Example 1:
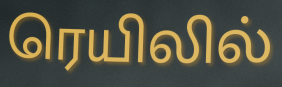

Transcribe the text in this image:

ரெயிலில்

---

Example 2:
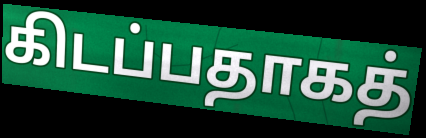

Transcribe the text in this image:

கிடப்பதாகத்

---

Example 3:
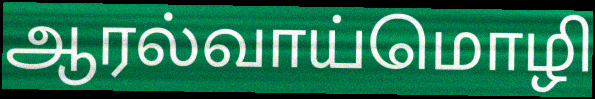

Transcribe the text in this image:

ஆரல்வாய்மொழி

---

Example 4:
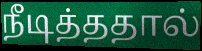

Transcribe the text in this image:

நீடித்ததால்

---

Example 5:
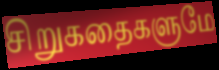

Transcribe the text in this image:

சிறுகதைகளுமே